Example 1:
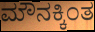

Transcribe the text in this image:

ಮೌನಕ್ಕಿಂತ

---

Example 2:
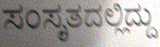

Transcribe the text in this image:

ಸಂಸ್ಕೃತದಲ್ಲಿದ್ದು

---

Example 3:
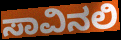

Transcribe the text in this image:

ಸಾವಿನಲಿ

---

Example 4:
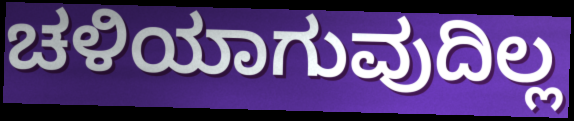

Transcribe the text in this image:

ಚಳಿಯಾಗುವುದಿಲ್ಲ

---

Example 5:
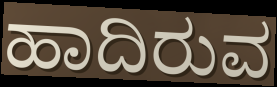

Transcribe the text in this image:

ಹಾದಿರುವ